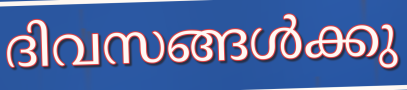
ദിവസങ്ങൾക്കു